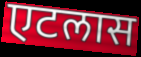
एटलास